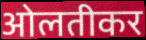
ओलतीकर